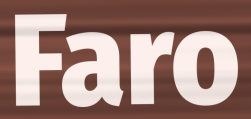
Faro